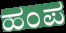
ಹಂಪ